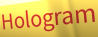
Hologram